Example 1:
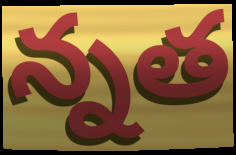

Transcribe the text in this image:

న్నత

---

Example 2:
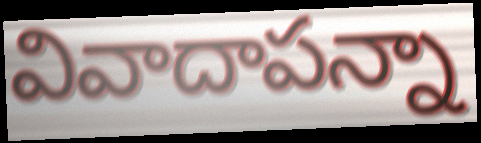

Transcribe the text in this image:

వివాదాపన్నా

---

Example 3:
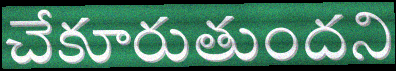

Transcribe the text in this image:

చేకూరుతుందని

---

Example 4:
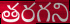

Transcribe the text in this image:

తరగని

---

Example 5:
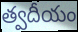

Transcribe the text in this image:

త్వదీయం